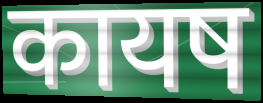
कायष